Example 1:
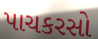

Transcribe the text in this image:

પાચકરસો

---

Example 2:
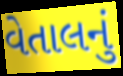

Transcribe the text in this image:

વેતાલનું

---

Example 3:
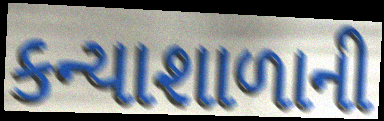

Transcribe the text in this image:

કન્યાશાળાની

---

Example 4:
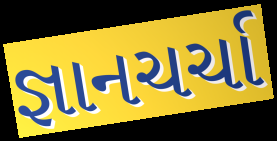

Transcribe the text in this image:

જ્ઞાનચર્ચા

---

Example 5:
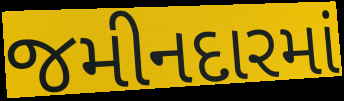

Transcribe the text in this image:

જમીનદારમાં